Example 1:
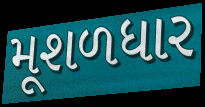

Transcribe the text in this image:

મૂશળધાર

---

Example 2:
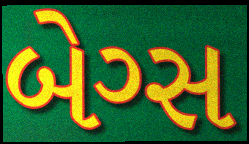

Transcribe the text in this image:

બેગ્સ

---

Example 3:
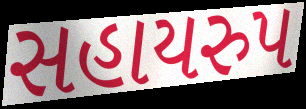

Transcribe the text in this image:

સહાયરુપ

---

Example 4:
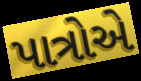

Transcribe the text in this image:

પાત્રોએ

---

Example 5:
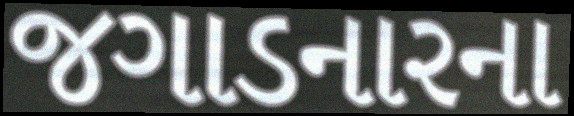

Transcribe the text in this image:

જગાડનારના